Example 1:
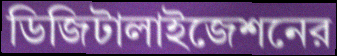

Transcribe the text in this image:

ডিজিটালাইজেশনের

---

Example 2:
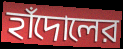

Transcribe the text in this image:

হাঁদোলের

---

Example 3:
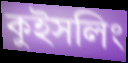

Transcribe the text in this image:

কুইসলিং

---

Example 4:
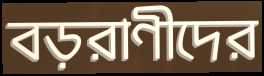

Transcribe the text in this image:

বড়রাণীদের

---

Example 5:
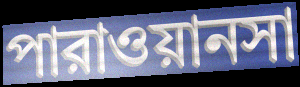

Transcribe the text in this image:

পারাওয়ানসা